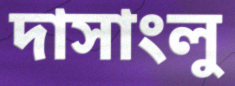
দাসাংলু